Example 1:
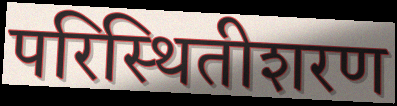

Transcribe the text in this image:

परिस्थितीशरण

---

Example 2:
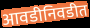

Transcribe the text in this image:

आवडीनिवडीत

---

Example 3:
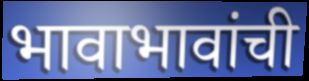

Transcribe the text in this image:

भावाभावांची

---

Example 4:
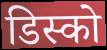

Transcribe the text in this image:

डिस्को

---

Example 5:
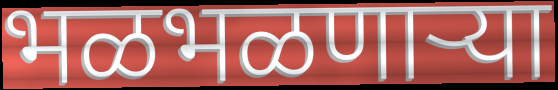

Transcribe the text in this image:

भळभळणाऱ्या